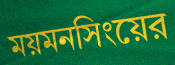
ময়মনসিংয়ের